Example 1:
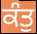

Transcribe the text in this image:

ਕੰਤੁ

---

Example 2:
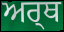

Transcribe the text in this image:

ਅਰ੍ਥ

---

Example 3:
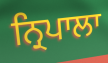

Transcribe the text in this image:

ਨ੍ਰਿਪਾਲਾ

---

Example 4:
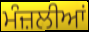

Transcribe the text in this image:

ਮੰਜ਼ਲੀਆਂ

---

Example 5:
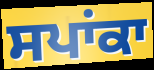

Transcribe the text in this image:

ਸਪਾਂਕਾ